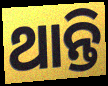
ଥାନ୍ତି